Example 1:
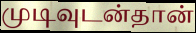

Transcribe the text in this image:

முடிவுடன்தான்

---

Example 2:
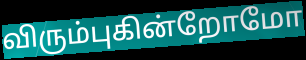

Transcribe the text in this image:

விரும்புகின்றோமோ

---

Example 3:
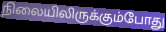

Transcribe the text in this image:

நிலையிலிருக்கும்போது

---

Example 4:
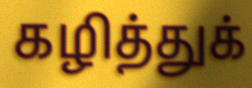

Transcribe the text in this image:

கழித்துக்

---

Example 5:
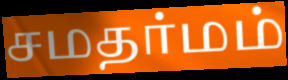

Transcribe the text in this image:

சமதர்மம்